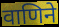
वाणिने